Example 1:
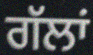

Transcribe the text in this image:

ਗੱਲਾਂ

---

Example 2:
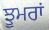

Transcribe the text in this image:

ਝੂਮਰਾਂ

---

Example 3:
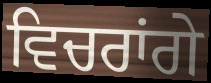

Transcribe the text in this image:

ਵਿਚਰਾਂਗੇ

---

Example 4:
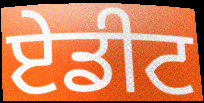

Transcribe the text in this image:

ਏਡੀਟ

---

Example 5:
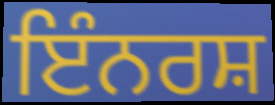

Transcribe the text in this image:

ਇੰਨਰਸ਼